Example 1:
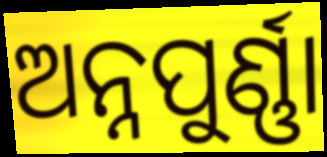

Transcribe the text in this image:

ଅନ୍ନପୁର୍ଣ୍ଣା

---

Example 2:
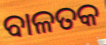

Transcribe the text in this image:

ବାଳତକ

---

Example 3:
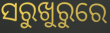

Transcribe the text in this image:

ସରୁଖୁରୁରେ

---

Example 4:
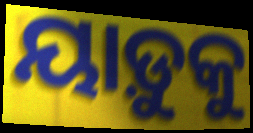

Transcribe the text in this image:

ୟାଡ଼ୁକୁ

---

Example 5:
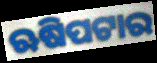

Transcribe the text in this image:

ଋଷିପଟାର